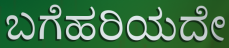
ಬಗೆಹರಿಯದೇ